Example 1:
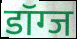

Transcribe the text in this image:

डॉग्ज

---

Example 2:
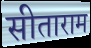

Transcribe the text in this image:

सीताराम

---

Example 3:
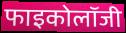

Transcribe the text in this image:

फाइकोलॉजी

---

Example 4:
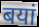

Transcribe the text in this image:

बयां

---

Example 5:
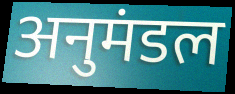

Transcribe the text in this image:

अनुमंडल